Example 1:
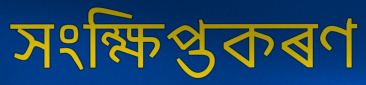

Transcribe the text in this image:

সংক্ষিপ্তকৰণ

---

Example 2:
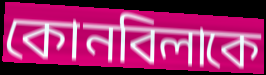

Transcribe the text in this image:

কোনবিলাকে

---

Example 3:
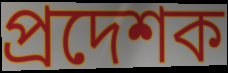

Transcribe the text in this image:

প্ৰদেশক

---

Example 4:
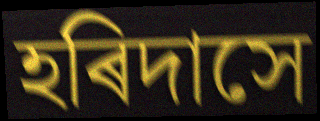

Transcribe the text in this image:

হৰিদাসে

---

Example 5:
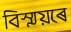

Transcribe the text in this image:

বিস্ময়ৰে